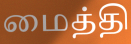
மைத்தி